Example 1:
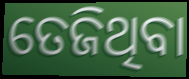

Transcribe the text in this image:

ତେଜିଥିବା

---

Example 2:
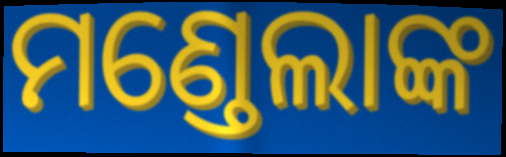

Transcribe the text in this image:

ମଣ୍ଡେଲାଙ୍କ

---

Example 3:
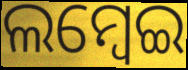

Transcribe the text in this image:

ଲମ୍ଵେଇ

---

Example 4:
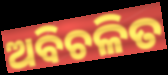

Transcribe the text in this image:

ଅବିଚଳିତ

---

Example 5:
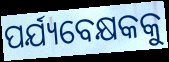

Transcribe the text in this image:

ପର୍ଯ୍ୟବେକ୍ଷକକୁ